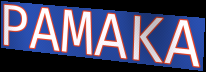
PAMAKA